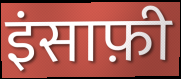
इंसाफ़ी